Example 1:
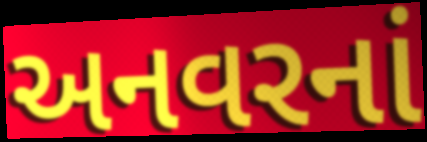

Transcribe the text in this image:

અનવરનાં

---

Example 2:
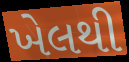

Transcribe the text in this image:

ખેલથી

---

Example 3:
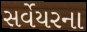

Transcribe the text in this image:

સર્વેયરના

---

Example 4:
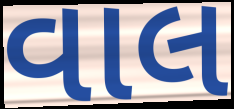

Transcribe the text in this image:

વાલ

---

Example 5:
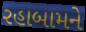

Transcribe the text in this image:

રહાબામને